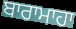
ਬਾਰਾਮਾਹਾ